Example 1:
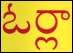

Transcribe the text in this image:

ఓర్లా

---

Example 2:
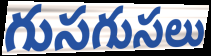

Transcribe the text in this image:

గుసగుసలు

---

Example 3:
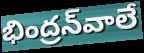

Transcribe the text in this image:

భింద్రన్‌వాలే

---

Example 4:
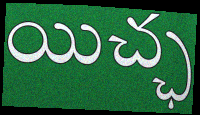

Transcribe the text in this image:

యిచ్ఛ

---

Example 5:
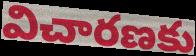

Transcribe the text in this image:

విచారణకు